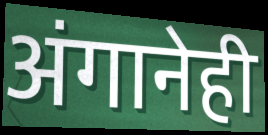
अंगानेही